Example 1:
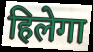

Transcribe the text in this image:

हिलेगा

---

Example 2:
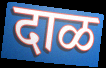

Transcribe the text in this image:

दाळ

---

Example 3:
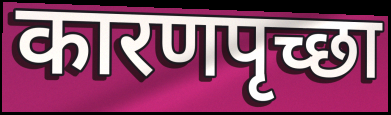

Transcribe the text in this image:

कारणपृच्छा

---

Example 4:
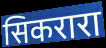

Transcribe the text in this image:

सिकरारा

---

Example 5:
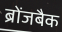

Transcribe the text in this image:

ब्रोंजबैक